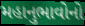
મહાનુભાવોનો